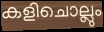
കളിചൊല്ലും